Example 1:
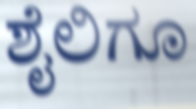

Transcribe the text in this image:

ಶೈಲಿಗೂ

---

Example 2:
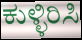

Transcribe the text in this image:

ಕುಳ್ಳಿರಿಸಿ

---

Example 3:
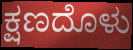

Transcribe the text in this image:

ಕ್ಷಣದೊಳು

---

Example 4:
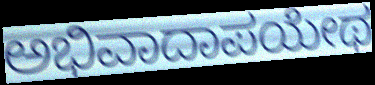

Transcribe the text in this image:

ಅಭಿವಾದಾಪಯೇಥ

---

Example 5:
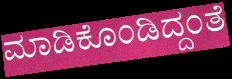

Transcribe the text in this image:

ಮಾಡಿಕೊಂಡಿದ್ದಂತೆ